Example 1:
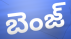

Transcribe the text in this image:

బెంజ్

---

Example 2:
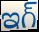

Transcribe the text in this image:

ఇగ్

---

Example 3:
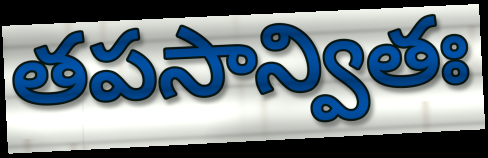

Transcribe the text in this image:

తపసాన్వితః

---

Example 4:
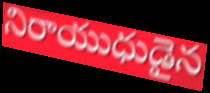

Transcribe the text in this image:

నిరాయుధుడైన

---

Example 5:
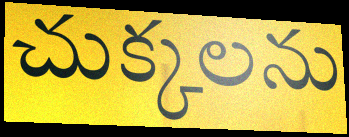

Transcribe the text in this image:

చుక్కలను